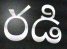
రడి